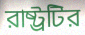
রাষ্ট্রটির